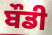
ਬੌਡੀ